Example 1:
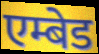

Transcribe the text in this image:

एम्बेड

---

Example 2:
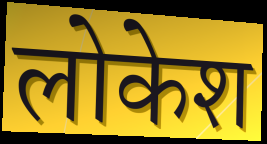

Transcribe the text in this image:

लोकेश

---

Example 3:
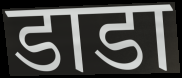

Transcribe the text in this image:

डाडा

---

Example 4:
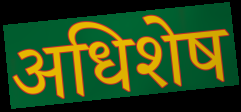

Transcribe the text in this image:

अधिशेष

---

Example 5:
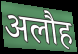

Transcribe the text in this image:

अलौह